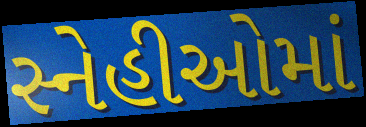
સ્નેહીઓમાં